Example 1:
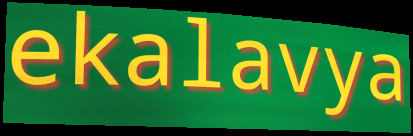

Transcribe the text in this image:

ekalavya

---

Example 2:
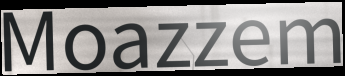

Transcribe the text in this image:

Moazzem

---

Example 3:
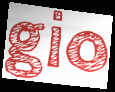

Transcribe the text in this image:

gio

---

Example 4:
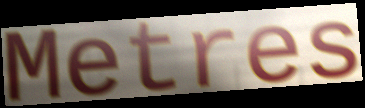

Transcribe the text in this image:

Metres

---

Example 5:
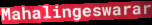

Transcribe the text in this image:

Mahalingeswarar